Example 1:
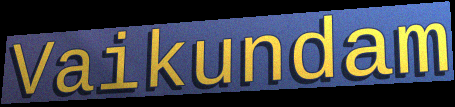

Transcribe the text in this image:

Vaikundam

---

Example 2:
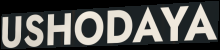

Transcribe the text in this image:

USHODAYA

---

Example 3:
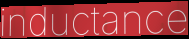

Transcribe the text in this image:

inductance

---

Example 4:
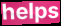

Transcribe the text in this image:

helps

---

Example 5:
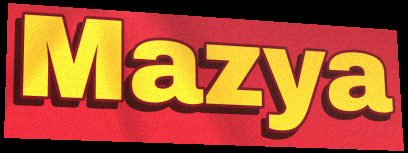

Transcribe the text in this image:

Mazya